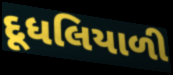
દૂધલિયાળી